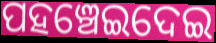
ପହଞ୍ଚେଇଦେଇ